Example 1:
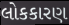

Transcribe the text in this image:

લોકકારણ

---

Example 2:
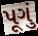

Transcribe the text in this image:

પૂગું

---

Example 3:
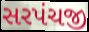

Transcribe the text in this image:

સરપંચજી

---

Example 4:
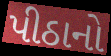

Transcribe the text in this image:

પીઠાનો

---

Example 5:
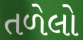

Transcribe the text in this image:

તળેલો